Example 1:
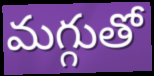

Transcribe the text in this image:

మగ్గుతో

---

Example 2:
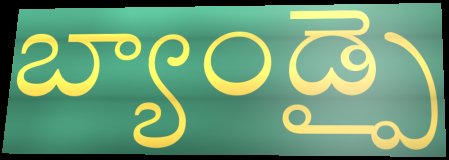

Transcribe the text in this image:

బ్యాండ్పై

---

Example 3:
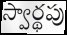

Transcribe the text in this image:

స్వార్థపు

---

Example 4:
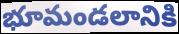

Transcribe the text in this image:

భూమండలానికి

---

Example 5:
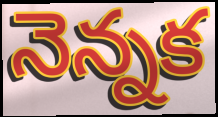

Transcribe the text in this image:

నెన్నక